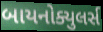
બાયનોક્યુલર્સ